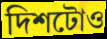
দিশটোও